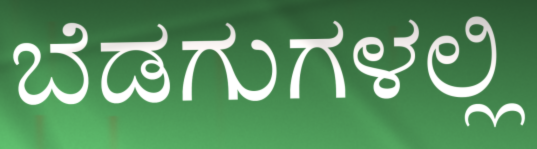
ಬೆಡಗುಗಳಲ್ಲಿ